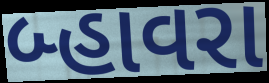
બ્હાવરા